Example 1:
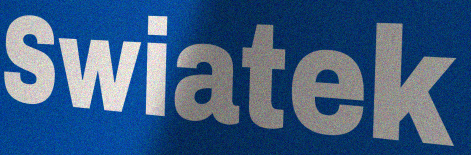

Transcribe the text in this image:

Swiatek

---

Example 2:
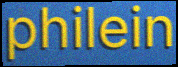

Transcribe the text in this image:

philein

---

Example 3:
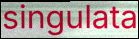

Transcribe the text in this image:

singulata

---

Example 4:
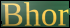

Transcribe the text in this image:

Bhor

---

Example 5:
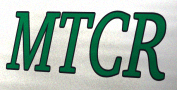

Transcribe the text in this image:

MTCR